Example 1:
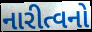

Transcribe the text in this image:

નારીત્વનો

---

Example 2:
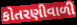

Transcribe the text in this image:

કોતરણીવાળી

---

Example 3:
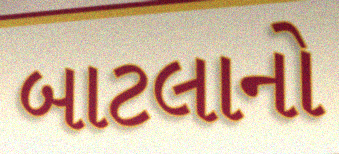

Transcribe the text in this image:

બાટલાનો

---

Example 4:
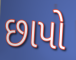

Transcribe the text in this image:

છાપો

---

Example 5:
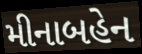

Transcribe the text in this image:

મીનાબહેન